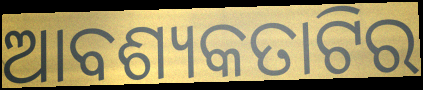
ଆବଶ୍ୟକତାଟିର